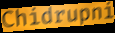
Chidrupni